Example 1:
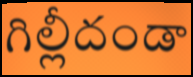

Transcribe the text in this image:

గిల్లీదండా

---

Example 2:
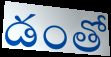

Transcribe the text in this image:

డంతో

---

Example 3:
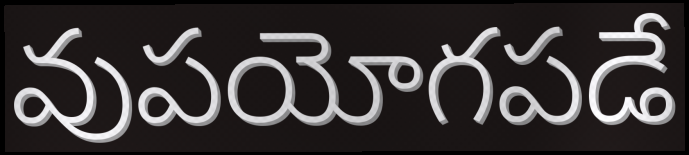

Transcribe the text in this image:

వుపయోగపడే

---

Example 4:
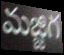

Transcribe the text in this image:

మజ్జిగ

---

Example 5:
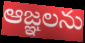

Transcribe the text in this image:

ఆజ్ఞలను